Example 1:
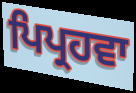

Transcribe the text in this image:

ਪਿਪ੍ਰਹਵਾ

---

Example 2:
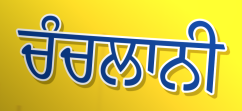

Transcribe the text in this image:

ਚੰਚਲਾਨੀ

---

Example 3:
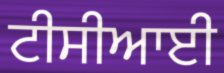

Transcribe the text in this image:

ਟੀਸੀਆਈ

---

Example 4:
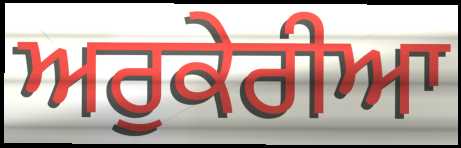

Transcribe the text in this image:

ਅਰੁਕੇਰੀਆ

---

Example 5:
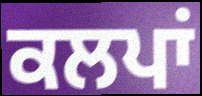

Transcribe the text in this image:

ਕਲਪਾਂ